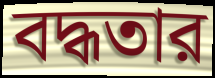
বদ্ধতার